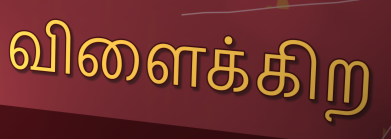
விளைக்கிற